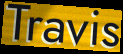
Travis